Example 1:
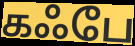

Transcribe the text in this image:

கஃபே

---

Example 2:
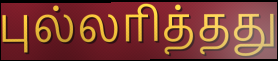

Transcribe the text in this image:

புல்லரித்தது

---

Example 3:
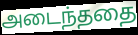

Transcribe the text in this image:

அடைந்ததை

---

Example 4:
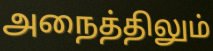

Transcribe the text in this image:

அநைத்திலும்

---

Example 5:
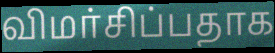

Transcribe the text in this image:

விமர்சிப்பதாக